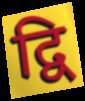
द्वि